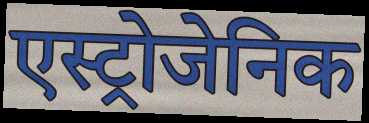
एस्ट्रोजेनिक